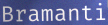
Bramanti